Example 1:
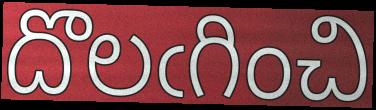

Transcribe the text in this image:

దొలఁగించి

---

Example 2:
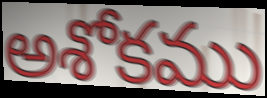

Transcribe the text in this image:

అశోకము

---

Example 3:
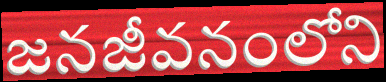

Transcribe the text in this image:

జనజీవనంలోని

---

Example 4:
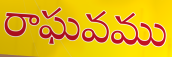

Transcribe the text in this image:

రాఘవము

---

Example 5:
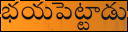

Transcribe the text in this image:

భయపెట్టాడు